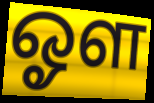
ஓள